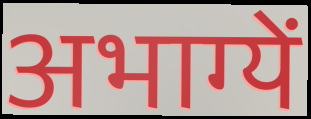
अभाग्यें